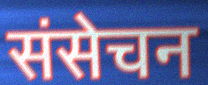
संसेचन